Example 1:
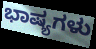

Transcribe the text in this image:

ಭಾಷ್ಯಗಳು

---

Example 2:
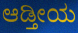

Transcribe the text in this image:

ಆಡ್ತೀಯ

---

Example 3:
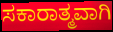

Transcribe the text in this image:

ಸಕಾರಾತ್ಮವಾಗಿ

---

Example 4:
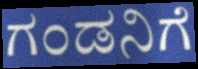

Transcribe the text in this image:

ಗಂಡನಿಗೆ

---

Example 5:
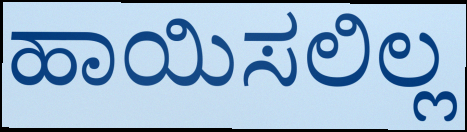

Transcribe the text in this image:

ಹಾಯಿಸಲಿಲ್ಲ